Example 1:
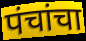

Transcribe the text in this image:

पंचांचा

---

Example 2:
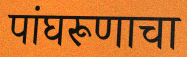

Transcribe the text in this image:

पांघरूणाचा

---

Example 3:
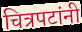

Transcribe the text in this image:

चित्रपटांनी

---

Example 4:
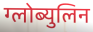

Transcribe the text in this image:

ग्लोब्युलिन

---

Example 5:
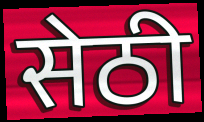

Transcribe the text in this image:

सेठी